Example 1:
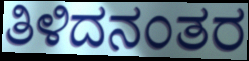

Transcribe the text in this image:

ತಿಳಿದನಂತರ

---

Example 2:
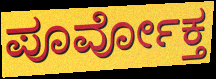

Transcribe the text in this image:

ಪೂರ್ವೋಕ್ತ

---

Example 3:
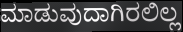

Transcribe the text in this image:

ಮಾಡುವುದಾಗಿರಲಿಲ್ಲ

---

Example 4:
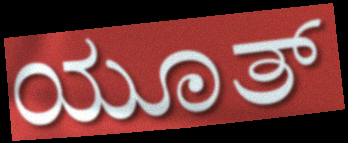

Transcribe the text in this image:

ಯೂತ್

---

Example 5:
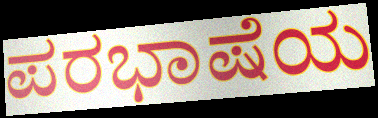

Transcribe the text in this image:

ಪರಭಾಷೆಯ